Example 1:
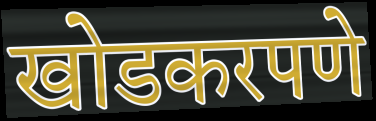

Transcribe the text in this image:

खोडकरपणे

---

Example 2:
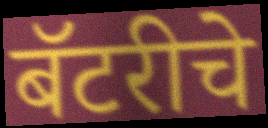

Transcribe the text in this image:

बॅटरीचे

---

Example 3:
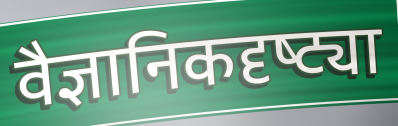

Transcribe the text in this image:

वैज्ञानिकदृष्ट्या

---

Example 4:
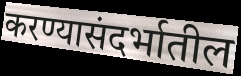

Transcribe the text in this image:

करण्यासंदर्भातील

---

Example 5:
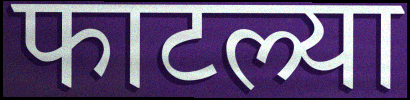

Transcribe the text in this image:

फाटल्या